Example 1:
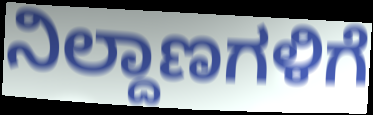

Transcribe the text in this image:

ನಿಲ್ದಾಣಗಳಿಗೆ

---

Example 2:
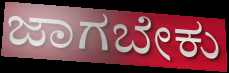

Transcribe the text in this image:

ಜಾಗಬೇಕು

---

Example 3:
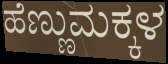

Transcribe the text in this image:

ಹೆಣ್ಣುಮಕ್ಕಳ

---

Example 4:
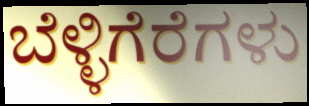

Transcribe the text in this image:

ಬೆಳ್ಳಿಗೆರೆಗಳು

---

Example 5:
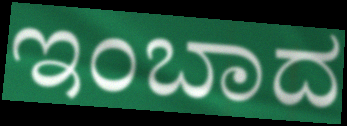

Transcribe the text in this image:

ಇಂಬಾದ